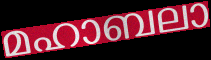
മഹാബലാ